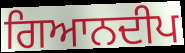
ਗਿਆਨਦੀਪ